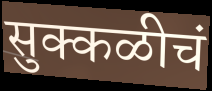
सुक्कळीचं